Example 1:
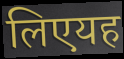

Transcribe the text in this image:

लिएयह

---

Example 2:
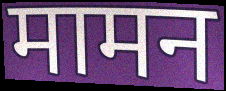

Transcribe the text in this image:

मामन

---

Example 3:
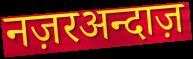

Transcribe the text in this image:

नज़रअन्दाज़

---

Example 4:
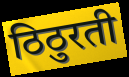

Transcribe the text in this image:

ठिठुरती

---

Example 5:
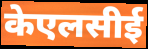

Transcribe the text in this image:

केएलसीई